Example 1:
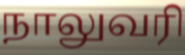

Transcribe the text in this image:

நாலுவரி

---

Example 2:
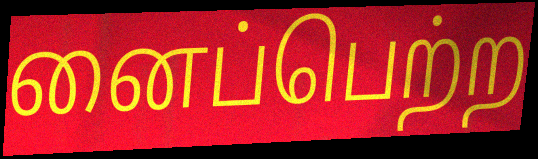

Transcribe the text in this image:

னைப்பெற்ற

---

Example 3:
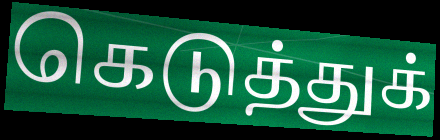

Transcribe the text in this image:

கெடுத்துக்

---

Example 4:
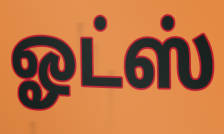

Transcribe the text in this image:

ஓட்ஸ்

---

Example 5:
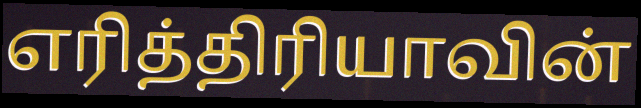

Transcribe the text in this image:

எரித்திரியாவின்